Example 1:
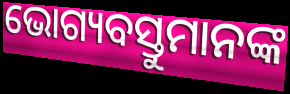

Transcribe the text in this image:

ଭୋଗ୍ୟବସ୍ତୁମାନଙ୍କ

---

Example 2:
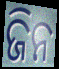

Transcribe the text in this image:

ଜିନ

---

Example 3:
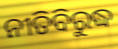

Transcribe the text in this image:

ନୀତିବିରୁଦ୍ଧ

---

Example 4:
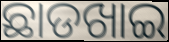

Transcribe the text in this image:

ଛାଡଖାଇ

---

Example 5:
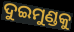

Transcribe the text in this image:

ଦୁଇମୁଣ୍ଡକୁ